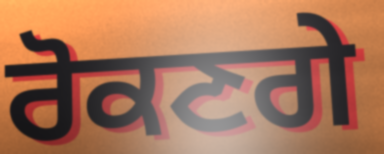
ਰੋਕਣਗੇ